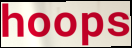
hoops